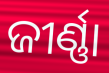
ଜୀର୍ଣ୍ଣା